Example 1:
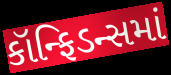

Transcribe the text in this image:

કૉન્ફિડન્સમાં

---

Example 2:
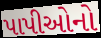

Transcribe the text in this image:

પાપીઓનો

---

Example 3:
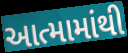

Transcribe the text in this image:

આત્મામાંથી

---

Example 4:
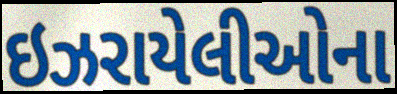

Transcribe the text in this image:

ઇઝરાયેલીઓના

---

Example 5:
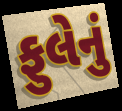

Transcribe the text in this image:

ફુલેનું